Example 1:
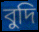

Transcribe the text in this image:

বুদি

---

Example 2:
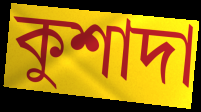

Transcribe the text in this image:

কুশাদা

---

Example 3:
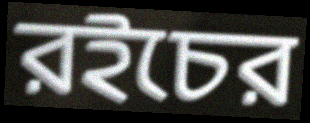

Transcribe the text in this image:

রইচের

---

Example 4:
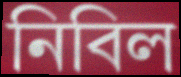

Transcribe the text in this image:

নিবিল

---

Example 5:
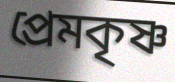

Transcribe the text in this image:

প্রেমকৃষ্ণ